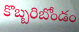
కొబ్బరిబోండం